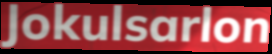
Jokulsarlon